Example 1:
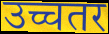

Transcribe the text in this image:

उच्चतर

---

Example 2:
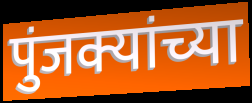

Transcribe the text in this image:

पुंजक्यांच्या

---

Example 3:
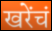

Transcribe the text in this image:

खरेंचं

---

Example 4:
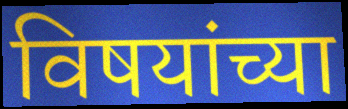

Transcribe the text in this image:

विषयांच्या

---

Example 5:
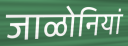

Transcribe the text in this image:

जाळोनियां